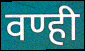
वण्ही